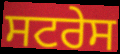
ਸਟਰੇਸ